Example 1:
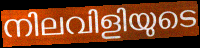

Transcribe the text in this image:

നിലവിളിയുടെ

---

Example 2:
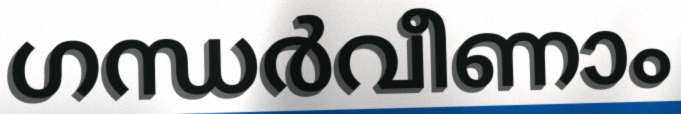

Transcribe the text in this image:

ഗന്ധർവീണാം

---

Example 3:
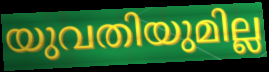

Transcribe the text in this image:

യുവതിയുമില്ല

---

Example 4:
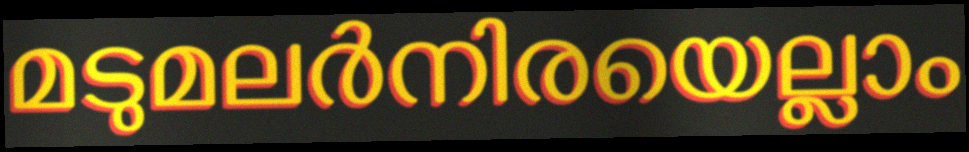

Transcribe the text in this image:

മടുമലർനിരയെല്ലാം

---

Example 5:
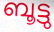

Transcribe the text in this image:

ബൂട്ടു